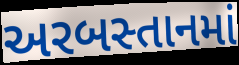
અરબસ્તાનમાં